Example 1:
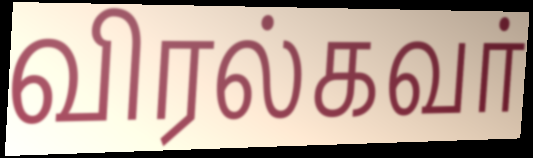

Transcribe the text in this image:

விரல்கவர்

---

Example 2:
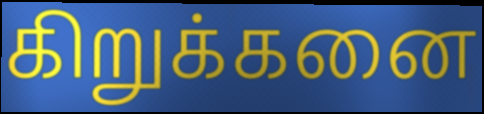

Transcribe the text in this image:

கிறுக்கனை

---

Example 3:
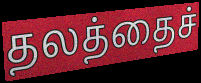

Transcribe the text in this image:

தலத்தைச்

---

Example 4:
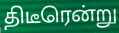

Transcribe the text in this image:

திடீரென்று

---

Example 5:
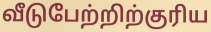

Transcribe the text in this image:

வீடுபேற்றிற்குரிய